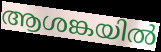
ആശങ്കയിൽ